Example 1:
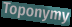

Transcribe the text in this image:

Toponymy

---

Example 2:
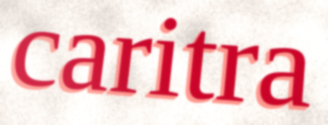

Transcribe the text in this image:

caritra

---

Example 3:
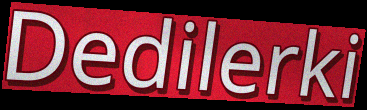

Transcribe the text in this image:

Dedilerki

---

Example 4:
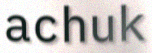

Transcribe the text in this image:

achuk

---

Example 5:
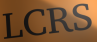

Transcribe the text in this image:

LCRS